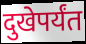
दुखेपर्यंत